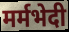
मर्मभेदी